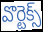
వొర్టెక్స్